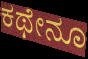
ಕಥೇನೂ